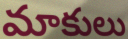
మాకులు